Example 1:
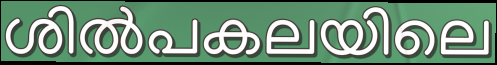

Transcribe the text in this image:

ശിൽപകലയിലെ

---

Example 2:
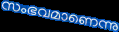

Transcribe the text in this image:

സംഭവമാണെന്നു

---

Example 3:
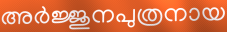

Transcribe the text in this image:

അർജ്ജുനപുത്രനായ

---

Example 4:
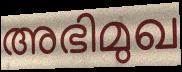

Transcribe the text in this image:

അഭിമുഖ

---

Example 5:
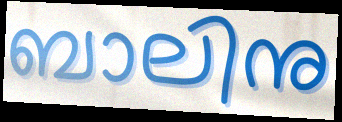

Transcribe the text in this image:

ബാലിനു